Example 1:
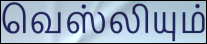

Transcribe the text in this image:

வெஸ்லியும்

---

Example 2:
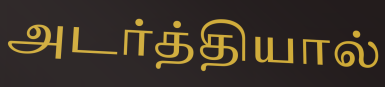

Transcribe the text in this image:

அடர்த்தியால்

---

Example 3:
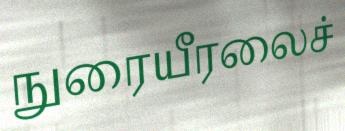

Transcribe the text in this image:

நுரையீரலைச்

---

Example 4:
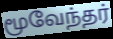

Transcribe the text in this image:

மூவேந்தர்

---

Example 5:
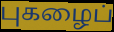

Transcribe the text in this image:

புகழைப்